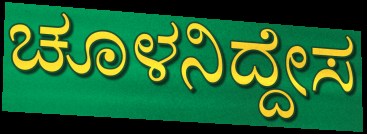
ಚೂಳನಿದ್ದೇಸ